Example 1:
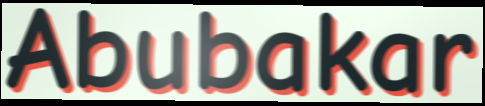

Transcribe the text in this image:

Abubakar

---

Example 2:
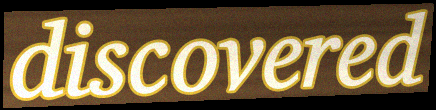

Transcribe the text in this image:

discovered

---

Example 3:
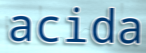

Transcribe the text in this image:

acida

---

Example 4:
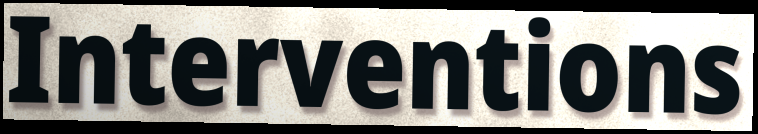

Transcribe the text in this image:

Interventions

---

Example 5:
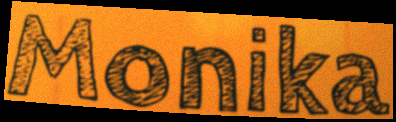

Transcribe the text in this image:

Monika